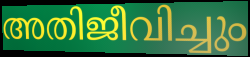
അതിജീവിച്ചും